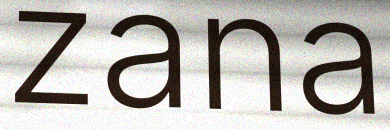
zana